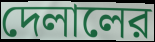
দেলালের